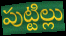
పుట్టిల్లు